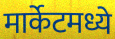
मार्केटमध्ये